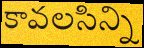
కావలసిన్ని